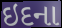
ઇદના